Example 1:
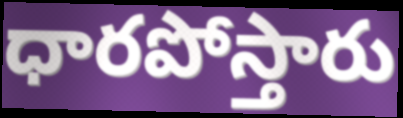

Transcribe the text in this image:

ధారపోస్తారు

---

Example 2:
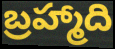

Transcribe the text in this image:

బ్రహ్మాది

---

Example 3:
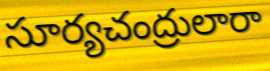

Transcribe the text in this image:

సూర్యచంద్రులారా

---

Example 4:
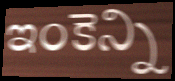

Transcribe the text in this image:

ఇంకెన్ని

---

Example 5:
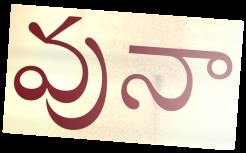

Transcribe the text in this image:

వునా